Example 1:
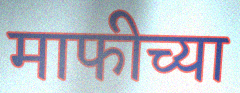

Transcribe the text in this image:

माफीच्या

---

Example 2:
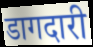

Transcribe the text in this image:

डागदारी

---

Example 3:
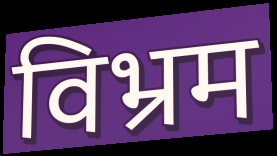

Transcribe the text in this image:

विभ्रम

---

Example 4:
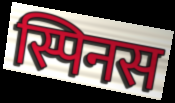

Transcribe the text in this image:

स्पिनस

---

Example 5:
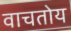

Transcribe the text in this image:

वाचतोय